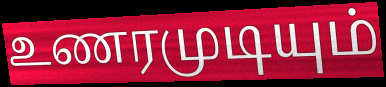
உணரமுடியும்